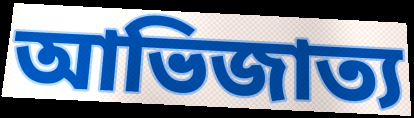
আভিজাত্য